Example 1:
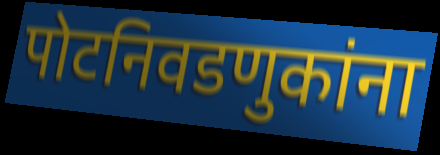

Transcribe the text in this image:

पोटनिवडणुकांना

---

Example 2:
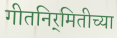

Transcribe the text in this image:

गीतनिर्मितीच्या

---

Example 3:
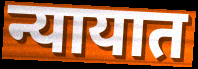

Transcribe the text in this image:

न्यायात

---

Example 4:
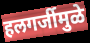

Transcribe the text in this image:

हलगर्जीमुळे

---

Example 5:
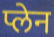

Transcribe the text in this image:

प्लेन